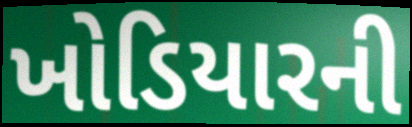
ખોડિયારની